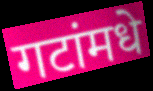
गटांमधे